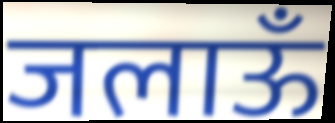
जलाऊँ